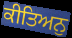
ਕੀਤਿਅਨੁ